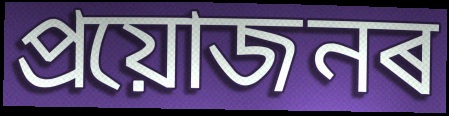
প্ৰয়োজনৰ